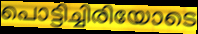
പൊട്ടിച്ചിരിയോടെ